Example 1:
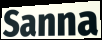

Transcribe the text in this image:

Sanna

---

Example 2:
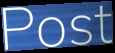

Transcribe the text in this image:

Post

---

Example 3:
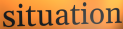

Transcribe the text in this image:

situation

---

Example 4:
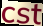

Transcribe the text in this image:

cst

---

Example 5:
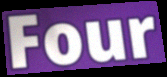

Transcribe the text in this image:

Four